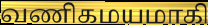
வணிகமயமாகி